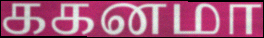
ககனமா